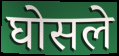
घोसले